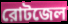
রোটজেল